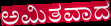
ಅಮಿತವಾದ